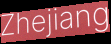
Zhejiang